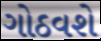
ગોઠવશે